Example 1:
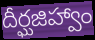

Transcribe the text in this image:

దీర్ఘజిహ్వాం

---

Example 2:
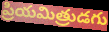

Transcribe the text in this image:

ప్రియమిత్రుడగు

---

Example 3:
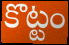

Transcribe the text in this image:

కొట్టం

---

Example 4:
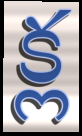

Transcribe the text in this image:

క్ల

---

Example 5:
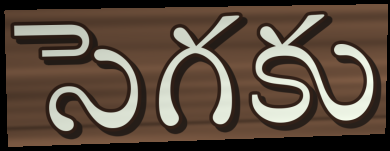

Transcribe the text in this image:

సెగకు